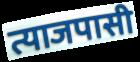
त्याजपासी